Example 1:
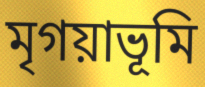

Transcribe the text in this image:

মৃগয়াভূমি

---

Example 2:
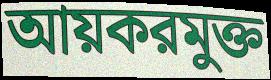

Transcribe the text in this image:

আয়করমুক্ত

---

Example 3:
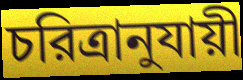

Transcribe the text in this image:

চরিত্রানুযায়ী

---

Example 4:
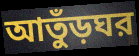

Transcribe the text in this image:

আতুঁড়ঘর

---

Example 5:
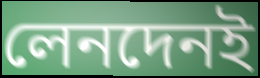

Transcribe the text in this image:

লেনদেনই